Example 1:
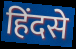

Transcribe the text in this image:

हिंदसे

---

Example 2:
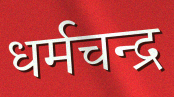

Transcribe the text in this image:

धर्मचन्द्र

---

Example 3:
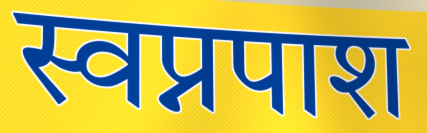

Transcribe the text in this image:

स्वप्नपाश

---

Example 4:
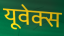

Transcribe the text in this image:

यूवेक्स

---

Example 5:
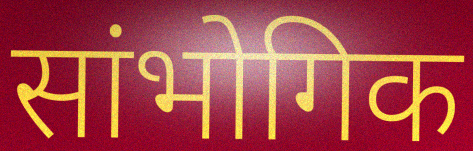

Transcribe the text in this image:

सांभोगिक